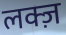
लक्ज़